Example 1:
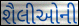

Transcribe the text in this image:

શૈલીઓની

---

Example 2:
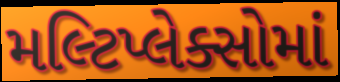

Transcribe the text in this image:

મલ્ટિપ્લેક્સોમાં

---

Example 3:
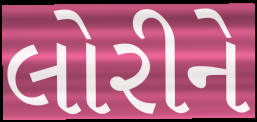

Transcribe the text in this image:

લોરીને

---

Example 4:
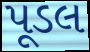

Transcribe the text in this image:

પૂડલ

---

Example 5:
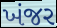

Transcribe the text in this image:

ખંજર